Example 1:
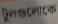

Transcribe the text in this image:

টুলগুলোকে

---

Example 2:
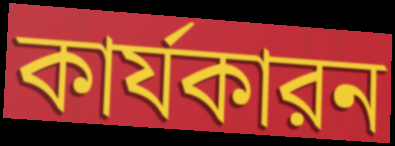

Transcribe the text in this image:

কার্যকারন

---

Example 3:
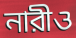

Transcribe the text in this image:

নারীও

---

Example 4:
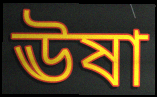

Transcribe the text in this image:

ঊষা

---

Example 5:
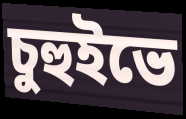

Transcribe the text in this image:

চুহুইভে